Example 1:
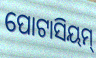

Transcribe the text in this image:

ପୋଟାସିୟମ୍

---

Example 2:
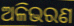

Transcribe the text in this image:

ଅଳିଭରଣ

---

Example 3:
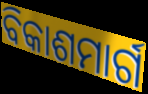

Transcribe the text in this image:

ବିକାଶମାର୍ଗ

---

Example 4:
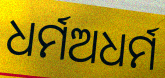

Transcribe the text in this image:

ଧର୍ମଅଧର୍ମ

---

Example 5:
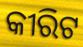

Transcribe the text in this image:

କୀରିଟ